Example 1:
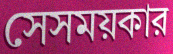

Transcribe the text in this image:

সেসময়কার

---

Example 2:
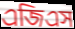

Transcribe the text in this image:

এজিএস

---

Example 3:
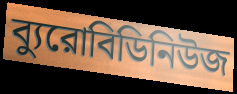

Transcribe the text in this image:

ব্যুরোবিডিনিউজ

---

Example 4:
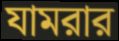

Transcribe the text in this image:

যামরার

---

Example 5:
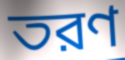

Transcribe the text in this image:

তরণ